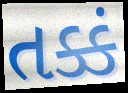
તક્કં